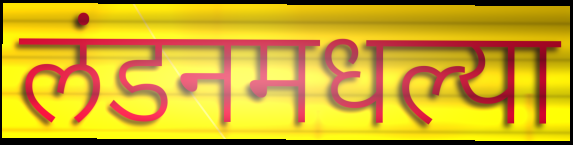
लंडनमधल्या